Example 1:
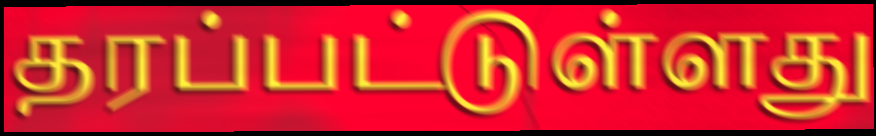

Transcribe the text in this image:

தரப்பட்டுள்ளது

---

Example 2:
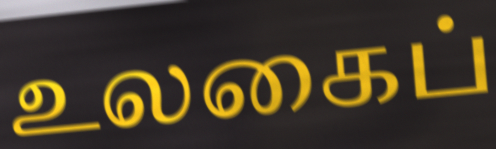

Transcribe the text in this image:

உலகைப்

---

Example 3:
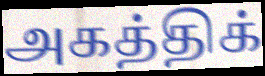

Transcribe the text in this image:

அகத்திக்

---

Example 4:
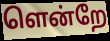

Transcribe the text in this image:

ளென்றே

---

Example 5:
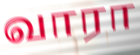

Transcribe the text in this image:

வாரா